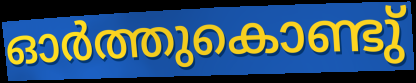
ഓർത്തുകൊണ്ടു്